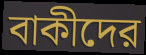
বাকীদের